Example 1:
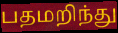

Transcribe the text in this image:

பதமறிந்து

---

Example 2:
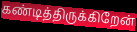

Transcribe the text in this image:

கண்டித்திருக்கிறேன்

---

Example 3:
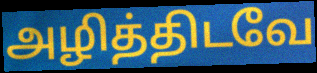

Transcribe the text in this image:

அழித்திடவே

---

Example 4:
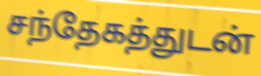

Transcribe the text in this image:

சந்தேகத்துடன்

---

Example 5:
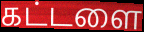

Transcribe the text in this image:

கட்டளை